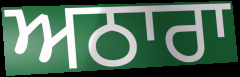
ਅਠਾਰਾ